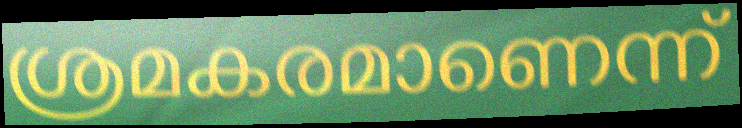
ശ്രമകരമാണെന്ന്